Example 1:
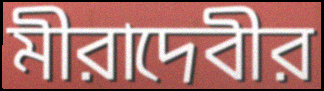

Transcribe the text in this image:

মীরাদেবীর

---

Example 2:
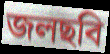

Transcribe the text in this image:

জলছবি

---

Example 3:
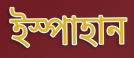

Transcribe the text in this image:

ইস্পাহান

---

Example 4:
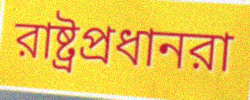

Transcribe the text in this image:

রাষ্ট্রপ্রধানরা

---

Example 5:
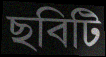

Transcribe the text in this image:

ছবিটি